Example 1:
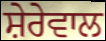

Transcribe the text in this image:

ਸ਼ੇਰੇਵਾਲ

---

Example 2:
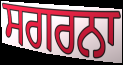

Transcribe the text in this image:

ਸਗਰਨਾ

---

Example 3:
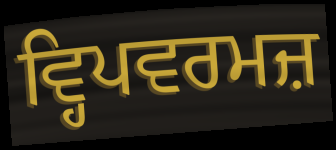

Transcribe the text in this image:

ਵ੍ਹਿਪਵਰਮਜ਼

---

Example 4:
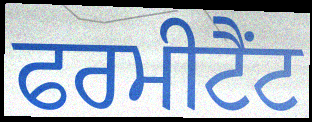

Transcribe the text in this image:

ਫਰਮੀਟੈਂਟ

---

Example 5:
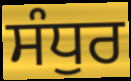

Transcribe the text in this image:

ਸੰਧੁਰ